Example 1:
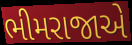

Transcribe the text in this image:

ભીમરાજાએ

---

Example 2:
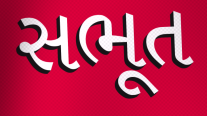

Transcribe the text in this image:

સભૂત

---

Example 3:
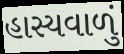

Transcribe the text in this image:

હાસ્યવાળું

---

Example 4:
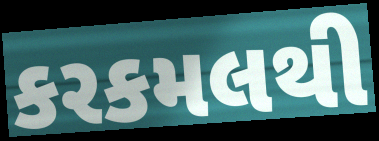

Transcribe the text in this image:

કરકમલથી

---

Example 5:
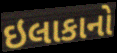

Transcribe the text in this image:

ઇલાકાનો